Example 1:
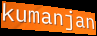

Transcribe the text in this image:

kumanjan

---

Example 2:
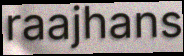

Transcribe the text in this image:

raajhans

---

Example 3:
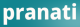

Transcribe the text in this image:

pranati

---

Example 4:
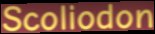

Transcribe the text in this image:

Scoliodon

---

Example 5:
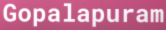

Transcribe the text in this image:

Gopalapuram